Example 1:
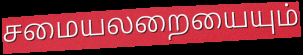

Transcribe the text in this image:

சமையலறையையும்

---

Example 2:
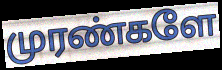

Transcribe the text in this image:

முரண்களே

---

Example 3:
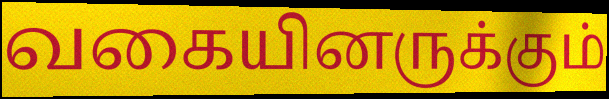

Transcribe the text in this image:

வகையினருக்கும்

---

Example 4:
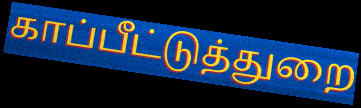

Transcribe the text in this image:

காப்பீட்டுத்துறை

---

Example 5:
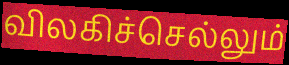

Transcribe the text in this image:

விலகிச்செல்லும்